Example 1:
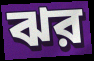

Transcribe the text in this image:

ঝর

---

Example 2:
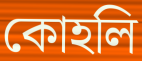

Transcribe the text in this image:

কোহলি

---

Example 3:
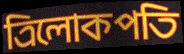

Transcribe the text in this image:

ত্রিলোকপতি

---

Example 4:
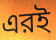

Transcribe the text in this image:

এরই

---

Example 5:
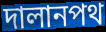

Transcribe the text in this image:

দালানপথ